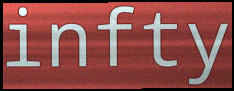
infty